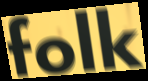
folk